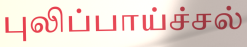
புலிப்பாய்ச்சல்